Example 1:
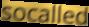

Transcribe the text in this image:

socalled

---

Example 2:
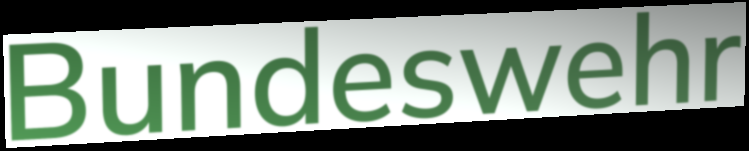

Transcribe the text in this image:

Bundeswehr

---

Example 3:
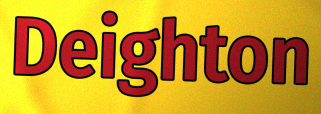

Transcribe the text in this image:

Deighton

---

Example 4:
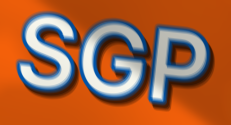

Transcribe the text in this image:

SGP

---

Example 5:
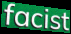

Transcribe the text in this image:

facist